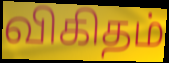
விகிதம்